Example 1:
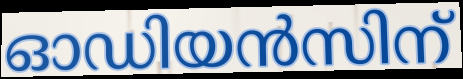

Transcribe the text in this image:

ഓഡിയൻസിന്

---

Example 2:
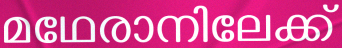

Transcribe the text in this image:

മഥേരാനിലേക്ക്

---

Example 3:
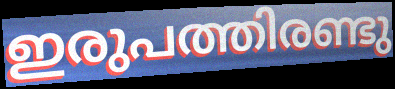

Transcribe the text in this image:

ഇരുപത്തിരണ്ടു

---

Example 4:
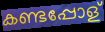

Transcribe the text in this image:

കണ്ടപ്പോള്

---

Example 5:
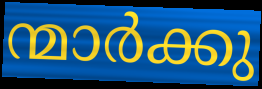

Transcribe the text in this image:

ന്മാർക്കു